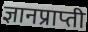
ज्ञानप्राप्ती